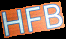
HFB